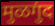
मुळगुंद